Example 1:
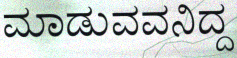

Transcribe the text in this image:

ಮಾಡುವವನಿದ್ದ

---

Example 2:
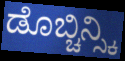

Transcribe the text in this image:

ಡೊಬ್ಚಿನ್ಸ್ಕಿ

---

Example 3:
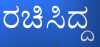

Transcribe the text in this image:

ರಚಿಸಿದ್ದ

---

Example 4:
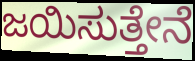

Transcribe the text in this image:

ಜಯಿಸುತ್ತೇನೆ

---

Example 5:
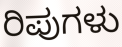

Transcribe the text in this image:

ರಿಪುಗಳು